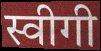
स्वीगी